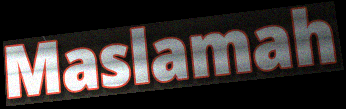
Maslamah